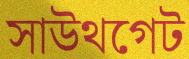
সাউথগেট